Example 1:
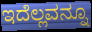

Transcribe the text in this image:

ಇದೆಲ್ಲವನ್ನೂ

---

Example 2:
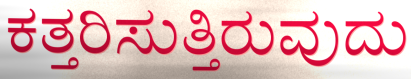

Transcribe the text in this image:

ಕತ್ತರಿಸುತ್ತಿರುವುದು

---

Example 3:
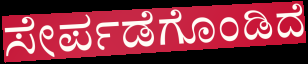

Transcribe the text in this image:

ಸೇರ್ಪಡೆಗೊಂಡಿದೆ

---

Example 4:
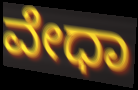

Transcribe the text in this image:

ವೇಧಾ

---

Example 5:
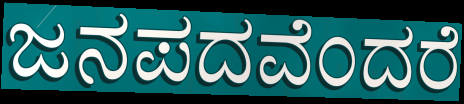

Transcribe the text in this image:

ಜನಪದವೆಂದರೆ